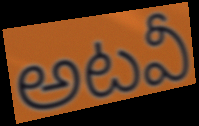
అటవీ